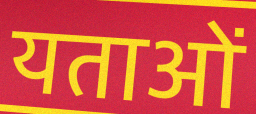
यताओं